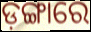
ଡ଼ଙ୍ଗାରେ